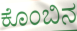
ಕೊಂಬಿನ